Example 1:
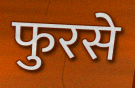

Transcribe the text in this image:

फुरसे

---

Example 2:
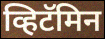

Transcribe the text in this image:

व्हिटॅमिन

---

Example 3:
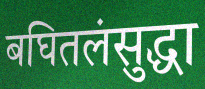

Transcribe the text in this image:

बघितलंसुद्धा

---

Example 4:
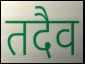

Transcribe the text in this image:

तदैव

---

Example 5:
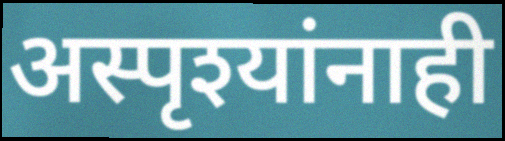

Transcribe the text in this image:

अस्पृश्यांनाही